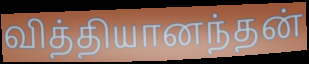
வித்தியானந்தன்